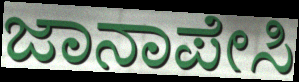
ಜಾನಾಪೇಸಿ